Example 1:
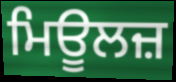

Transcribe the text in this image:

ਮਿਊਲਜ਼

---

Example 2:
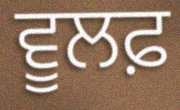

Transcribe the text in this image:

ਵੂਲਫ਼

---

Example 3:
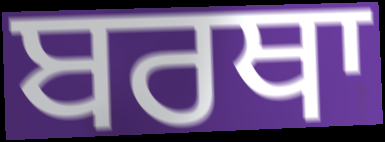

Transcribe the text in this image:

ਬਰਥਾ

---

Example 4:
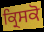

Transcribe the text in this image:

ਕ੍ਰਿਸਕੋ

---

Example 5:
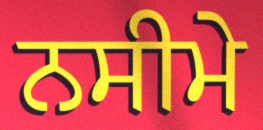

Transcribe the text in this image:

ਨਸੀਮੇ